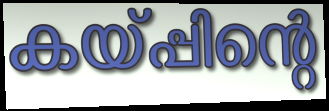
കയ്പ്പിന്റെ